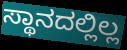
ಸ್ಥಾನದಲ್ಲಿಲ್ಲ